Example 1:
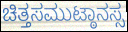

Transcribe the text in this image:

ಚಿತ್ತಸಮುಟ್ಠಾನಸ್ಸ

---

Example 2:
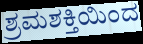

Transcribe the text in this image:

ಶ್ರಮಶಕ್ತಿಯಿಂದ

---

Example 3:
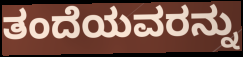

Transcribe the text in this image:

ತಂದೆಯವರನ್ನು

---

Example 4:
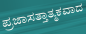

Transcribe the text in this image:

ಪ್ರಜಾಸತ್ತಾತ್ಮಕವಾದ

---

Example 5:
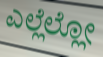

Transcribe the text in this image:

ಎಲ್ಲೆಲ್ಲೋ